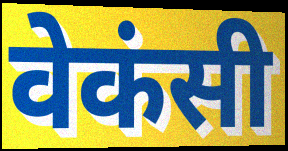
वेकंसी